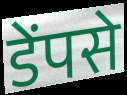
डेंपसे